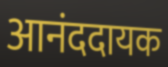
आनंददायक